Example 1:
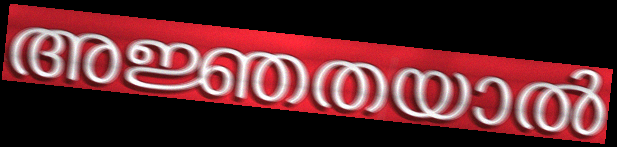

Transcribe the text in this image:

അജ്ഞതയാൽ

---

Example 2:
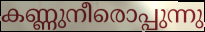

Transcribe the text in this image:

കണ്ണുനീരൊപ്പുന്നു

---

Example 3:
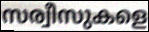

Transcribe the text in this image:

സര്വീസുകളെ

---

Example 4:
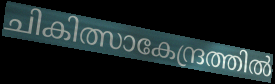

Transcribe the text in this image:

ചികിത്സാകേന്ദ്രത്തിൽ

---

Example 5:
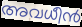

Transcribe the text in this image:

അവധീൻ